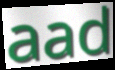
aad